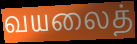
வயலைத்